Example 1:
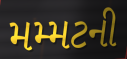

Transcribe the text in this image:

મમ્મટની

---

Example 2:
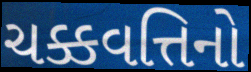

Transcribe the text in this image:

ચક્કવત્તિનો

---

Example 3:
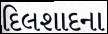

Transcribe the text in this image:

દિલશાદના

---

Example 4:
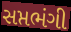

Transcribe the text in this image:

સપ્તભંગી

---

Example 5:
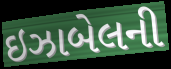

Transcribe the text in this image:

ઇઝાબેલની